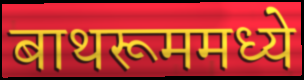
बाथरूममध्ये